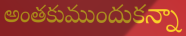
అంతకుముందుకన్నా